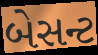
બેસન્ટ